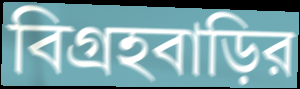
বিগ্রহবাড়ির